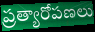
ప్రత్యారోపణలు